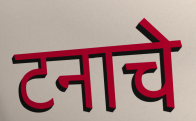
टनाचे